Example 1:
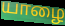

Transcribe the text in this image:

யாழை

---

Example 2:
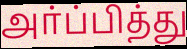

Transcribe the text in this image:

அர்ப்பித்து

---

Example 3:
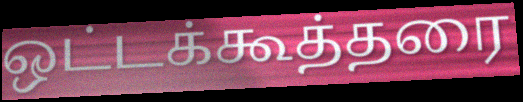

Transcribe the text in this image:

ஒட்டக்கூத்தரை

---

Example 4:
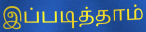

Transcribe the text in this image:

இப்படித்தாம்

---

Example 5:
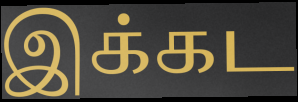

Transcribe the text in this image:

இக்கட